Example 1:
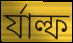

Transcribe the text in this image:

র্যাল্ফ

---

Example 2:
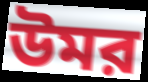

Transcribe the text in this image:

উমর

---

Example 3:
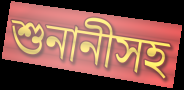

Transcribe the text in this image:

শুনানীসহ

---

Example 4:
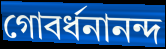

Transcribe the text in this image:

গোবর্ধনানন্দ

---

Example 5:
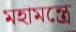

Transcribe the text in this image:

মহামন্ত্রে